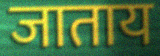
जाताय